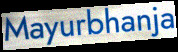
Mayurbhanja